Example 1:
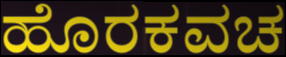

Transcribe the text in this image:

ಹೊರಕವಚ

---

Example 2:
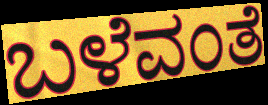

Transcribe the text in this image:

ಬಳೆವಂತೆ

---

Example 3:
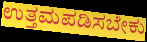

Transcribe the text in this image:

ಉತ್ತಮಪಡಿಸಬೇಕು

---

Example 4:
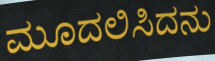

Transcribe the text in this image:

ಮೂದಲಿಸಿದನು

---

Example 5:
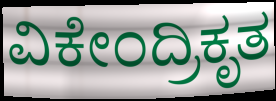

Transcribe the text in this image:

ವಿಕೇಂದ್ರಿಕೃತ